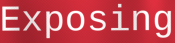
Exposing